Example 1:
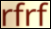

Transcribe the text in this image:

rfrf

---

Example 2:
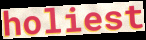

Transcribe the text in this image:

holiest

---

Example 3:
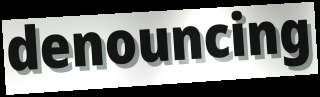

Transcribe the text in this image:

denouncing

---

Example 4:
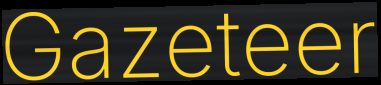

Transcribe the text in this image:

Gazeteer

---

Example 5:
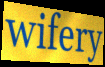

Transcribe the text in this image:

wifery